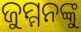
ଜୁମ୍ମନଙ୍କୁ